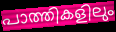
പാത്തികളിലും